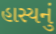
હાસ્યનું